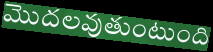
మొదలవుతుంటుంది